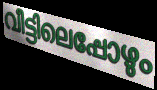
വീട്ടിലെപ്പോഴും